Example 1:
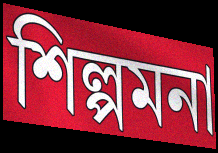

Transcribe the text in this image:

শিল্পমনা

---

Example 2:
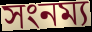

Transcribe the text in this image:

সংনম্য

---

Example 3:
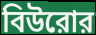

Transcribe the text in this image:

বিউরোর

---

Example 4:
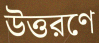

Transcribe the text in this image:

উত্তরণে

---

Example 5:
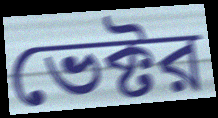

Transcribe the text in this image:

ভেক্টর